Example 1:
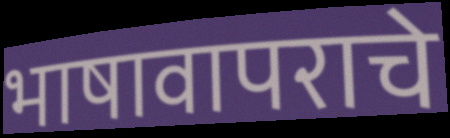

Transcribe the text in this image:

भाषावापराचे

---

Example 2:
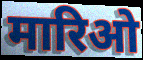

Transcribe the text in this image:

मारिओ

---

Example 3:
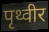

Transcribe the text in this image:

पृथ्वीर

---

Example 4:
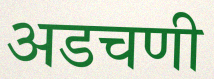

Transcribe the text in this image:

अडचणी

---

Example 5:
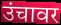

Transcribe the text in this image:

उंचावर